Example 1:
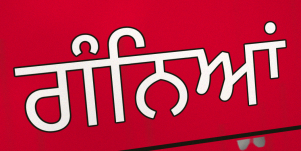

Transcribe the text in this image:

ਗੰਨਿਆਂ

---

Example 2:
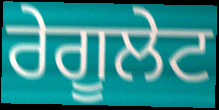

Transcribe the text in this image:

ਰੇਗੂਲੇਟ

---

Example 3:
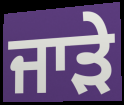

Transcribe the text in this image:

ਜਾੜੇ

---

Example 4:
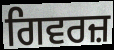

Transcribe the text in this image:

ਗਿਵਰਜ਼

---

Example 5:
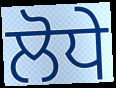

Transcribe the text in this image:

ਲੋਧੇ